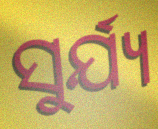
ସୁର୍ଯ୍ୟ